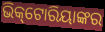
ଭିକ୍‌ଟୋରିୟାଙ୍କର